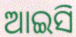
ଆଇସି